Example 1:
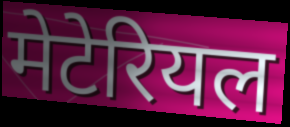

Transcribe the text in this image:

मेटेरियल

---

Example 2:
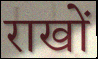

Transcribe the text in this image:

राखों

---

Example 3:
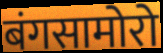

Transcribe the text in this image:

बंगसामोरो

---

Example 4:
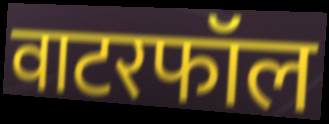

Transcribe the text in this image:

वाटरफॉल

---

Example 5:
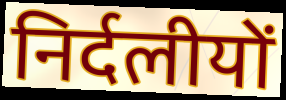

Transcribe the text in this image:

निर्दलीयों